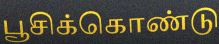
பூசிக்கொண்டு